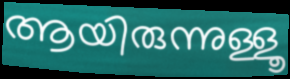
ആയിരുന്നുള്ളൂ